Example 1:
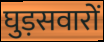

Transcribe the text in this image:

घुड़सवारों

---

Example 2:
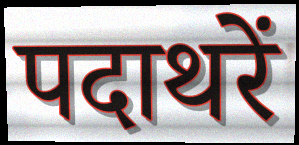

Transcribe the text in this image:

पदाथरें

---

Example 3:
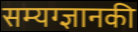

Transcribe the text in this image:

सम्यग्ज्ञानकी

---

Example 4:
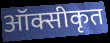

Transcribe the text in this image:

ऑक्सीकृत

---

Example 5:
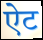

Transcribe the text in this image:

ऐट